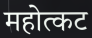
महोत्कट